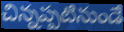
చిన్నప్పటినుండే